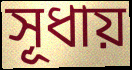
সূধায়